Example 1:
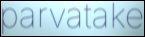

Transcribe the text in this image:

parvatake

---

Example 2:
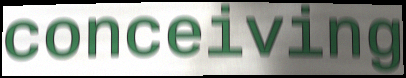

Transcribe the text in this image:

conceiving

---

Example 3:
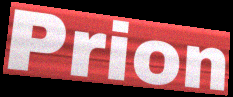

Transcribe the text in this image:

Prion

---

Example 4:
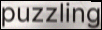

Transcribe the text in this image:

puzzling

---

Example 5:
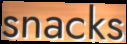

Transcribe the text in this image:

snacks